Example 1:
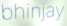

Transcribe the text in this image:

bhinjay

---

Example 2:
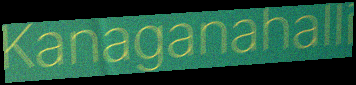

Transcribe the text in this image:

Kanaganahalli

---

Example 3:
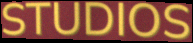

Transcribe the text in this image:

STUDIOS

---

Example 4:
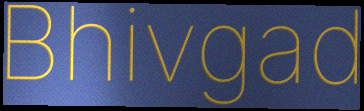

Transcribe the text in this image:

Bhivgad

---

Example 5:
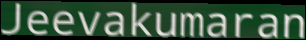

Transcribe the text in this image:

Jeevakumaran